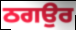
ਠਗਉਰ